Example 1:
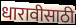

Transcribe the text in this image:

धारावीसाठी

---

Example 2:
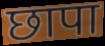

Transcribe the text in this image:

छापा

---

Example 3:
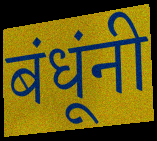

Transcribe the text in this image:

बंधूंनी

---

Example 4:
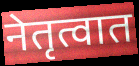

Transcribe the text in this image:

नेतृत्वात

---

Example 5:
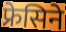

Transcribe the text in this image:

फ्रेसिने